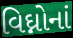
વિઘ્નોનાં